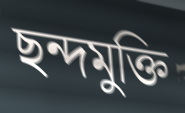
ছন্দমুক্তি